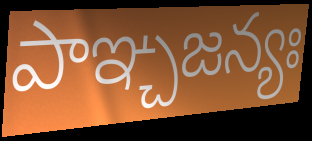
పాఞ్చజన్యః